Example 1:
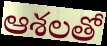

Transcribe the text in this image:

ఆశలతో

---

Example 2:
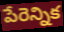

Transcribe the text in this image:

పేరెన్నిక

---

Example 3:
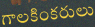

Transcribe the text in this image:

గాలకింకరులు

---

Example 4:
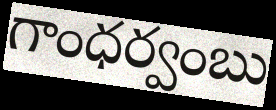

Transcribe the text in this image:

గాంధర్వంబు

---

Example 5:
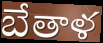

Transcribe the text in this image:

బేతాళ